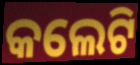
କଲେଟି